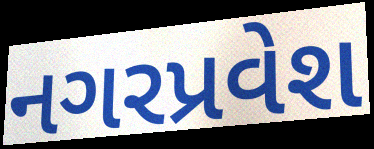
નગરપ્રવેશ